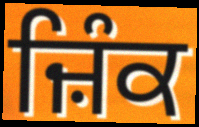
ਜ਼ਿੰਕ